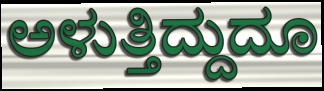
ಅಳುತ್ತಿದ್ದುದೂ